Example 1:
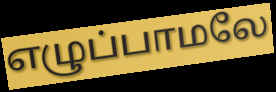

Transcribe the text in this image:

எழுப்பாமலே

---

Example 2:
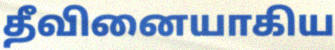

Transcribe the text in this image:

தீவினையாகிய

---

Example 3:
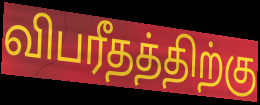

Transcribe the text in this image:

விபரீதத்திற்கு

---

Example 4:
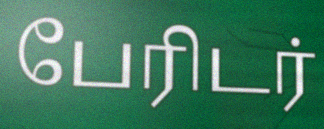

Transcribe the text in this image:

பேரிடர்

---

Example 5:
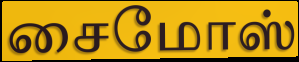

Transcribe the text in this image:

சைமோஸ்